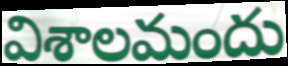
విశాలమందు